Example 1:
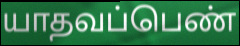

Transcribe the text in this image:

யாதவப்பெண்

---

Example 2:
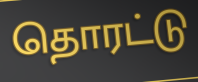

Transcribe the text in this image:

தொரட்டு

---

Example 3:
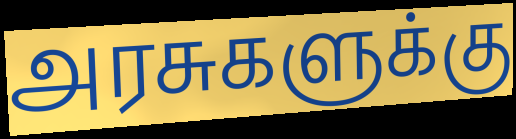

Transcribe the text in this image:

அரசுகளுக்கு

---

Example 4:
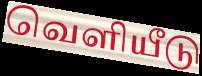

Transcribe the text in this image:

வெளியீடு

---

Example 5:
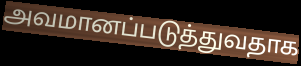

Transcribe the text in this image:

அவமானப்படுத்துவதாக